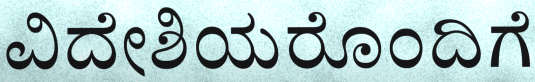
ವಿದೇಶಿಯರೊಂದಿಗೆ